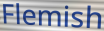
Flemish